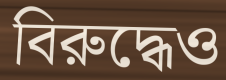
বিরুদ্ধেও